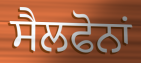
ਸੈਲਫੋਨਾਂ